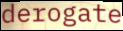
derogate